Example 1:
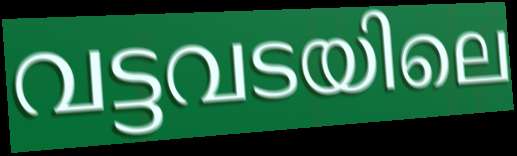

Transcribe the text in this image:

വട്ടവടയിലെ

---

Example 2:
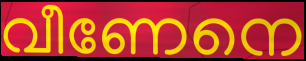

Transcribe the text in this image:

വീണേനെ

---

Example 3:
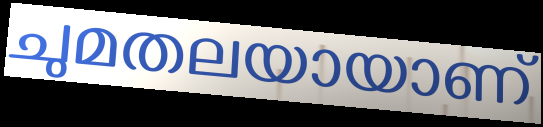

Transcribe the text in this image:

ചുമതലയായാണ്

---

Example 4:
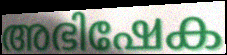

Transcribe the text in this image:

അഭിഷേക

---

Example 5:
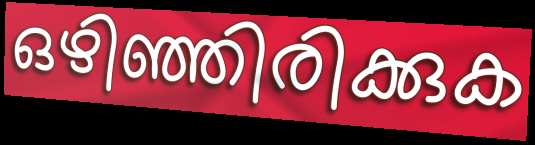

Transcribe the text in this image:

ഒഴിഞ്ഞിരിക്കുക